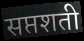
सप्तशती